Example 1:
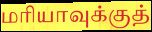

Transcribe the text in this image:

மரியாவுக்குத்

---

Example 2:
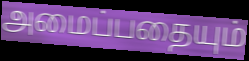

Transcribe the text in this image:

அமைப்பதையும்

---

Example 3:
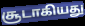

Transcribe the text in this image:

சூடாகியது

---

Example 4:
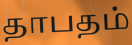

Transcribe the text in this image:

தாபதம்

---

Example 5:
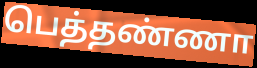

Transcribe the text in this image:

பெத்தண்ணா